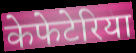
केफेटेरिया